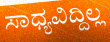
ಸಾಧ್ಯವಿದ್ದಿಲ್ಲ